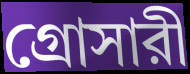
গ্রোসারী